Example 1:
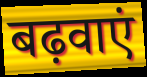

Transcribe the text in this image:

बढ़वाएं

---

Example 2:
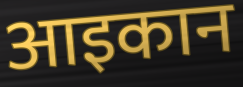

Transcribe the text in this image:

आइकान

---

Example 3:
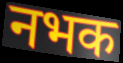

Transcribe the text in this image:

नभक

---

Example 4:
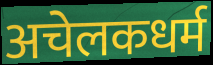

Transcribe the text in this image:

अचेलकधर्म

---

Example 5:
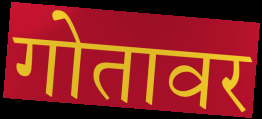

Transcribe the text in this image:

गोतावर